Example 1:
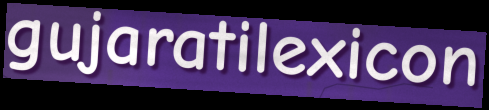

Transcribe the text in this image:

gujaratilexicon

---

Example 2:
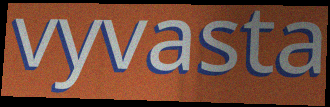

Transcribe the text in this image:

vyvasta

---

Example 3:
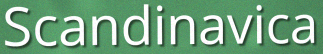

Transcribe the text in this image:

Scandinavica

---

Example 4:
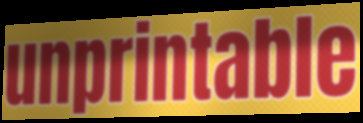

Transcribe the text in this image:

unprintable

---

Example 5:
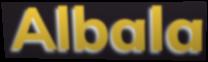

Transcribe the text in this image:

Albala